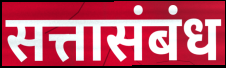
सत्तासंबंध